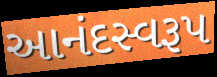
આનંદસ્વરૂપ